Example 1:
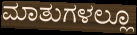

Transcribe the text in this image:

ಮಾತುಗಳಲ್ಲೂ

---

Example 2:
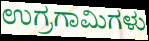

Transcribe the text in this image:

ಉಗ್ರಗಾಮಿಗಳು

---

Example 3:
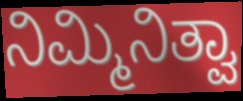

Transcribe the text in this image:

ನಿಮ್ಮಿನಿತ್ವಾ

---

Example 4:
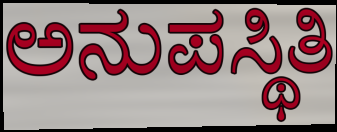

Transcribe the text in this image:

ಅನುಪಸ್ಥಿತಿ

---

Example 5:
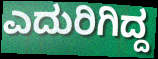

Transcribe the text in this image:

ಎದುರಿಗಿದ್ದ